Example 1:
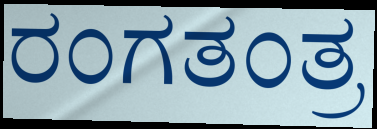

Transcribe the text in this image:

ರಂಗತಂತ್ರ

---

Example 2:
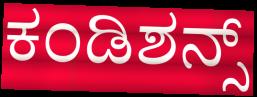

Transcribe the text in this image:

ಕಂಡಿಶನ್ಸ್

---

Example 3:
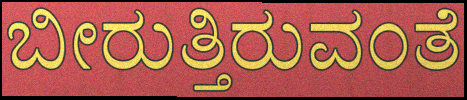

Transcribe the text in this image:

ಬೀರುತ್ತಿರುವಂತೆ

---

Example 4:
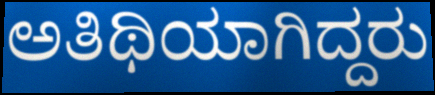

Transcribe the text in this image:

ಅತಿಥಿಯಾಗಿದ್ದರು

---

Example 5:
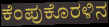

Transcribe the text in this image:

ಕೆಂಪುಕೊರಳಿನ